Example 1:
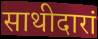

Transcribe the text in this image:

साथीदारां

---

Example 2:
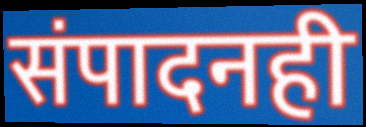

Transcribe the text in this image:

संपादनही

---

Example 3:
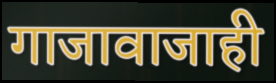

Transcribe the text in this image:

गाजावाजाही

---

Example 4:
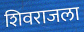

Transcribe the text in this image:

शिवराजला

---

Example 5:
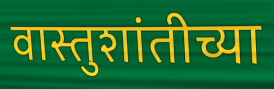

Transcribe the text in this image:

वास्तुशांतीच्या